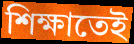
শিক্ষাতেই